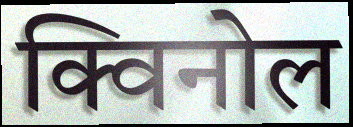
क्विनोल